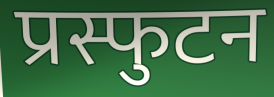
प्रस्‍फुटन